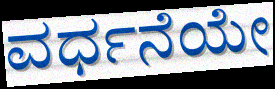
ವರ್ಧನೆಯೇ